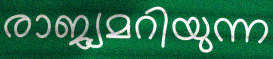
രാജ്യമറിയുന്ന